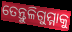
ତେନ୍ତୁଳିଗୁମ୍ମାକୁ